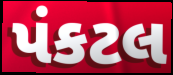
પંકટલ